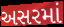
અસરમાં